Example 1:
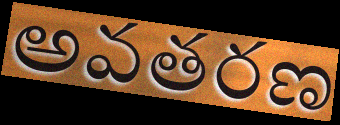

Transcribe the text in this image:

అవతరణ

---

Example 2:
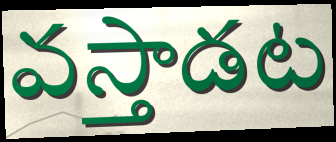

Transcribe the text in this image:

వస్తాడట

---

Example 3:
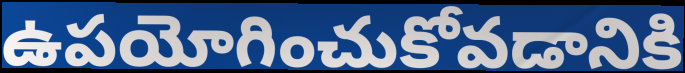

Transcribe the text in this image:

ఉపయోగించుకోవడానికి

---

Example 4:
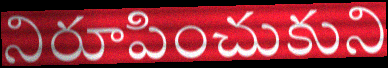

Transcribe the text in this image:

నిరూపించుకుని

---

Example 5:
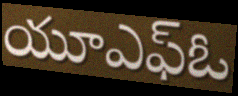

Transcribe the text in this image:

యూఎఫ్ఓ